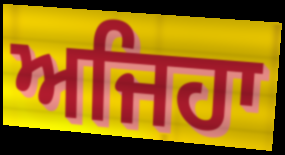
ਅਜਿਹਾ